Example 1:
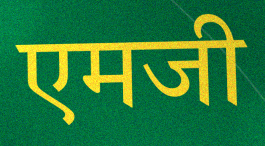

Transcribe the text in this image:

एमजी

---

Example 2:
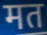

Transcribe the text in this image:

मत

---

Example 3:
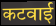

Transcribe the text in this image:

कटवाई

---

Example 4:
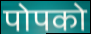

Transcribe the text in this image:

पोपको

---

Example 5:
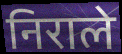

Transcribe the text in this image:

निराले